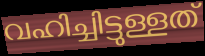
വഹിച്ചിട്ടുള്ളത്